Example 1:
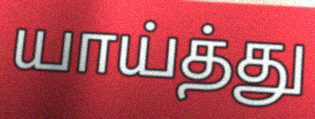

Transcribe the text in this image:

யாய்த்து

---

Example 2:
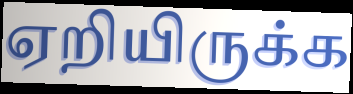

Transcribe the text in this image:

ஏறியிருக்க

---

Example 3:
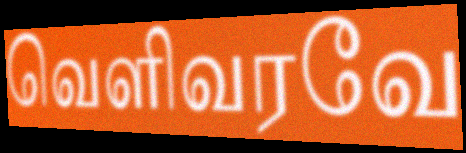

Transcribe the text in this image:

வெளிவரவே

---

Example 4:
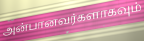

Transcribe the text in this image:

அன்பானவர்களாகவும்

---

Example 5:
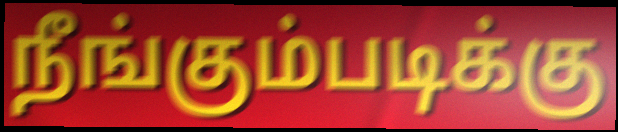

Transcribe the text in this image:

நீங்கும்படிக்கு